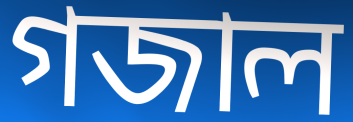
গজাল